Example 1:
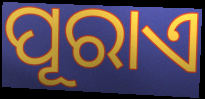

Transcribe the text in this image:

ପୂରାଏ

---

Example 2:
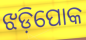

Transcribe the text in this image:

ଝଡ଼ିପୋକ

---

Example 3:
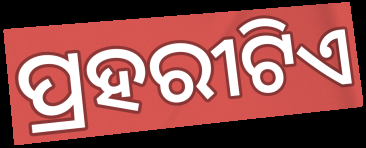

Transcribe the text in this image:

ପ୍ରହରୀଟିଏ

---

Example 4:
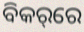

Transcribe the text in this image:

ବିକର୍‌ରେ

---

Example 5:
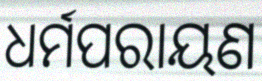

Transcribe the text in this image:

ଧର୍ମପରାୟଣ